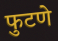
फुटणे